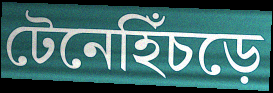
টেনেহিঁচড়ে